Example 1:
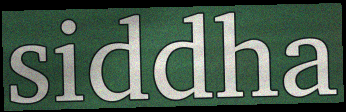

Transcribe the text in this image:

siddha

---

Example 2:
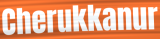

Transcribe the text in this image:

Cherukkanur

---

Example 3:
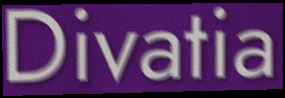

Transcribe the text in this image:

Divatia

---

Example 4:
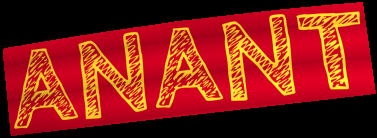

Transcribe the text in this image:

ANANT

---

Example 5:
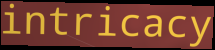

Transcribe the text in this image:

intricacy